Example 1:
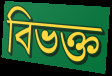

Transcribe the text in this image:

বিভক্ত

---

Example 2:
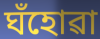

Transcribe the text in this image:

ঘঁহোৱা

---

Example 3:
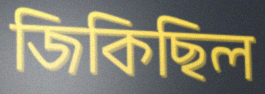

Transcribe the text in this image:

জিকিছিল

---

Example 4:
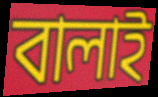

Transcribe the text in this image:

বালাই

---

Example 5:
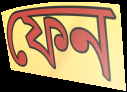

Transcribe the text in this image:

ফেন